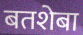
बतशेबा